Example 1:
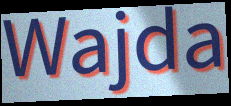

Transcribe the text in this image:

Wajda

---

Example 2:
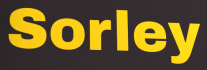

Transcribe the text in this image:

Sorley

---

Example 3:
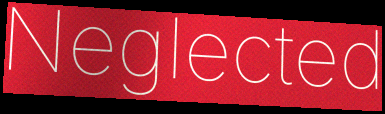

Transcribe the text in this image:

Neglected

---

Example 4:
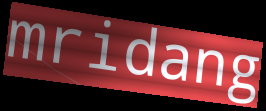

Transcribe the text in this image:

mridang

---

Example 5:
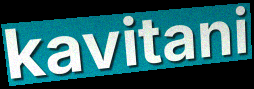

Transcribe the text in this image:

kavitani